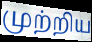
முற்றிய